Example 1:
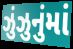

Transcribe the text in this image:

ઝુંઝુનુંમાં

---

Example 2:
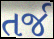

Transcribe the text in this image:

તર્જ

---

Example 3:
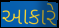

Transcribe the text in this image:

આકારે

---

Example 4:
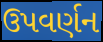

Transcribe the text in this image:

ઉપવર્ણન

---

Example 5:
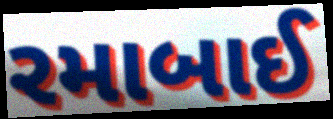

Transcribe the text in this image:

રમાબાઈ